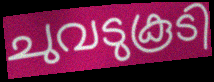
ചുവടുകൂടി